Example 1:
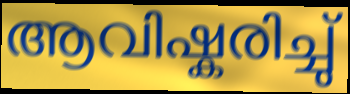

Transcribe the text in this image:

ആവിഷ്കരിച്ചു്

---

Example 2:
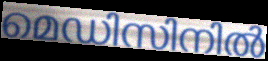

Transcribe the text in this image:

മെഡിസിനിൽ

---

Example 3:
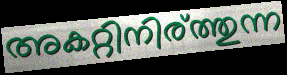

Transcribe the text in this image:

അകറ്റിനിര്ത്തുന്ന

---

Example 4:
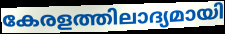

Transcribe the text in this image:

കേരളത്തിലാദ്യമായി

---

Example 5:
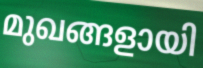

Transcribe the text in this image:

മുഖങ്ങളായി